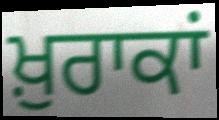
ਖ਼ੁਰਾਕਾਂ